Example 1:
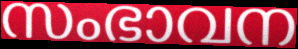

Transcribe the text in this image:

സംഭാവന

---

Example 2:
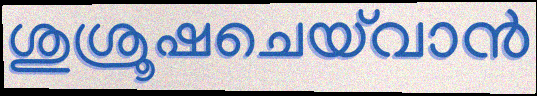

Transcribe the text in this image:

ശുശ്രൂഷചെയ്‌വാൻ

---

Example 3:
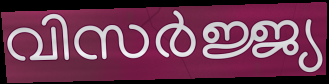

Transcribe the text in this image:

വിസർജ്ജ്യ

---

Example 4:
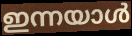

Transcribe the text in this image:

ഇന്നയാൾ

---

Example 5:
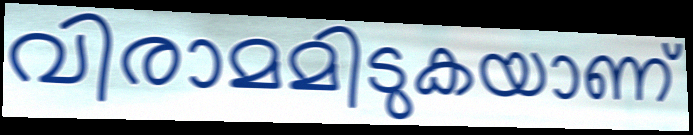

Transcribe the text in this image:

വിരാമമിടുകയാണ്